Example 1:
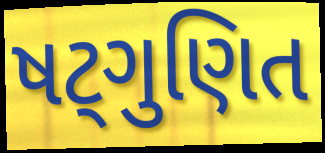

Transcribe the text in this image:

ષટ્ગુણિત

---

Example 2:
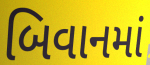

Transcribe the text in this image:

બિવાનમાં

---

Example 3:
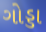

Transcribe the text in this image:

ગોડ્ડા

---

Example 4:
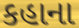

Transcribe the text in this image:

કહાના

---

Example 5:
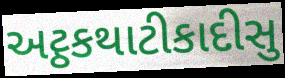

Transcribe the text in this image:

અટ્ઠકથાટીકાદીસુ